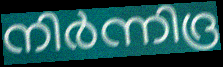
നിർന്നിദ്ര